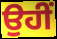
ਉਹੀਂ